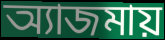
অ্যাজমায়